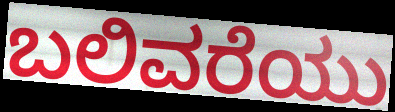
ಬಲಿವರೆಯು